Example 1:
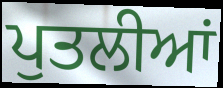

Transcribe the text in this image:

ਪੁਤਲੀਆਂ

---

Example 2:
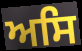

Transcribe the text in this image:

ਅਸਿ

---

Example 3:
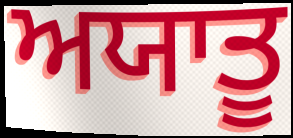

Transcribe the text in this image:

ਅਯਾਤੂ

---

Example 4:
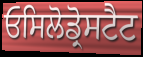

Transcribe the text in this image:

ਓਸਿਲੋਡ੍ਰੋਸਟੈਟ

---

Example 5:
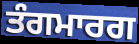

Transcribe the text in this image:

ਤੰਗਮਾਰਗ